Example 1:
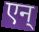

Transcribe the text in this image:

एन्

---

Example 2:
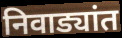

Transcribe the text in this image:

निवाड्यांत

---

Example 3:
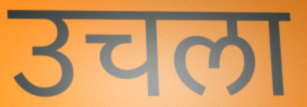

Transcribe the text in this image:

उचला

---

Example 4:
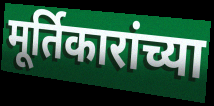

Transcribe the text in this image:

मूर्तिकारांच्या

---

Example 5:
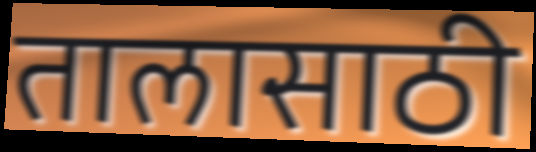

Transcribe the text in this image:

तालासाठी